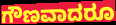
ಗೌಣವಾದರೂ